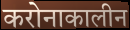
करोनाकालीन